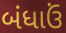
બંધાઉં